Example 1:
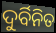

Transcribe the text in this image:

ଦୁର୍ବିନିତ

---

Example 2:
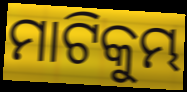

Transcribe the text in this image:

ମାଟିକୁମ୍ଭ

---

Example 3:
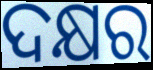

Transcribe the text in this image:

ଦକ୍ଷର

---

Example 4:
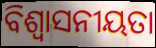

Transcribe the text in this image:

ବିଶ୍ୱାସନୀୟତା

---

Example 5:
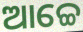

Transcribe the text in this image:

ଆଚ୍ଚେ